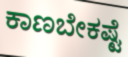
ಕಾಣಬೇಕಷ್ಟೆ